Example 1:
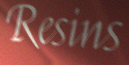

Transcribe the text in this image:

Resins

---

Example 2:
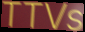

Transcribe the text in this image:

TTVs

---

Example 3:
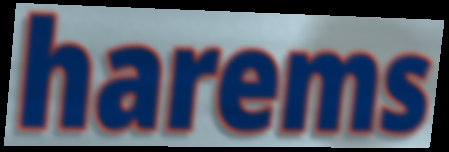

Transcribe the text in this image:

harems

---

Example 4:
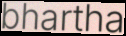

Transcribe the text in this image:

bhartha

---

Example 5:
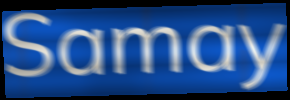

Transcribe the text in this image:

Samay